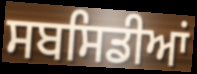
ਸਬਸਿਡੀਆਂ